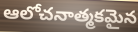
ఆలోచనాత్మకమైన